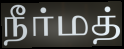
நீர்மத்